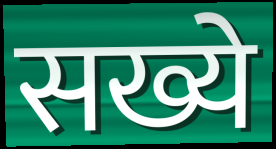
सख्ये